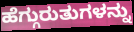
ಹೆಗ್ಗುರುತುಗಳನ್ನು